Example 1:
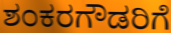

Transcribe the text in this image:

ಶಂಕರಗೌಡರಿಗೆ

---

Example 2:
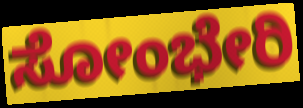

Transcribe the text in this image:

ಸೋಂಭೇರಿ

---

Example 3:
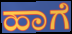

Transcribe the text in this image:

ಹಾಗೆ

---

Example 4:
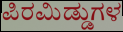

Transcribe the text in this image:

ಪಿರಮಿಡ್ಡುಗಳ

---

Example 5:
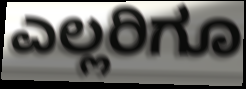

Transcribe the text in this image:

ಎಲ್ಲರಿಗೂ